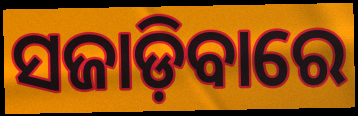
ସଜାଡ଼ିବାରେ